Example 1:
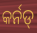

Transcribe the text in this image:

କର୍ନଡ୍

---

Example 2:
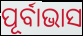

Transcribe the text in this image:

ପୂର୍ବାଭାସ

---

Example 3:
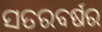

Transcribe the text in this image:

ସତରବର୍ଷର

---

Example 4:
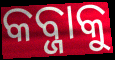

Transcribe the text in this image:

କବ୍ଜାକୁ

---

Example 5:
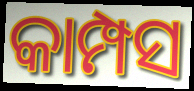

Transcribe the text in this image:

କାମ୍ପସ